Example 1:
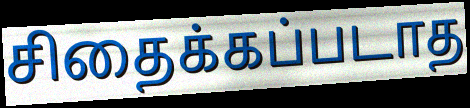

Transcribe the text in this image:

சிதைக்கப்படாத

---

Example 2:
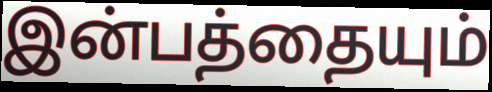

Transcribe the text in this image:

இன்பத்தையும்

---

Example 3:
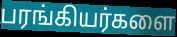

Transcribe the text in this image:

பரங்கியர்களை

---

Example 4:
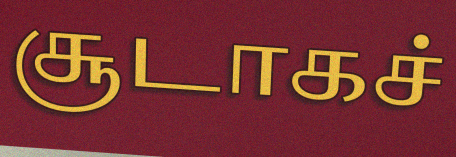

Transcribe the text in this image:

சூடாகச்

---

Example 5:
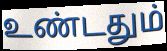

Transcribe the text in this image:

உண்டதும்